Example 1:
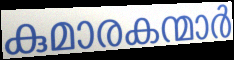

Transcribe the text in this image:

കുമാരകന്മാർ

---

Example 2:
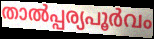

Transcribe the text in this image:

താൽപ്പര്യപൂർവം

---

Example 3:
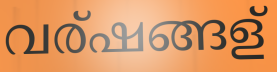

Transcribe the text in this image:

വര്ഷങ്ങള്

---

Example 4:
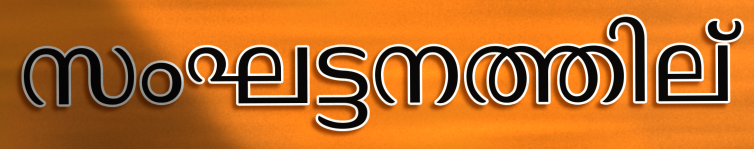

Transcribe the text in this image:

സംഘട്ടനത്തില്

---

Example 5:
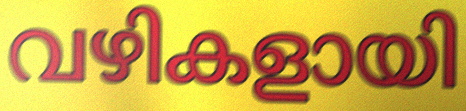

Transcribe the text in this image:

വഴികളായി